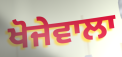
ਖੋਜੇਵਾਲਾ